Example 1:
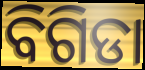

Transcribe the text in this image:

ବିଗିଡା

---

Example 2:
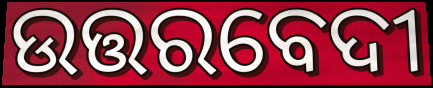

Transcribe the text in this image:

ଉତ୍ତରବେଦୀ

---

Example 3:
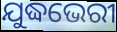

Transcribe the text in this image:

ଯୁଦ୍ଧଭେରୀ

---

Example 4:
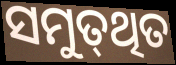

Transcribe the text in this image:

ସମୁତ୍‌ଥିତ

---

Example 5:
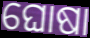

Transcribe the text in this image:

ଘୋଷା